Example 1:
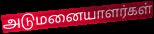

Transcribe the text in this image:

அடுமனையாளர்கள்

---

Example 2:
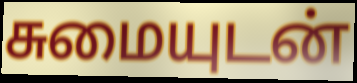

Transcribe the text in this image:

சுமையுடன்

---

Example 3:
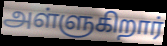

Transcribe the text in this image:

அள்ளுகிறார்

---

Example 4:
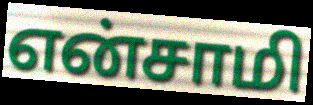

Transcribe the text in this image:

என்சாமி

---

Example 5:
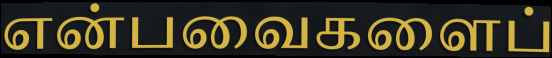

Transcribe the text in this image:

என்பவைகளைப்